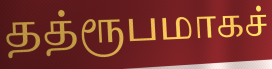
தத்ரூபமாகச்